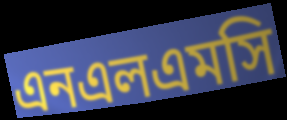
এনএলএমসি